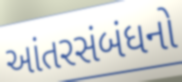
આંતરસંબંધનો